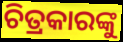
ଚିତ୍ରକାରଙ୍କୁ